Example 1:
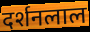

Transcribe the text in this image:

दर्शनलाल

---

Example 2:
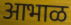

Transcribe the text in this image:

आभाळ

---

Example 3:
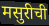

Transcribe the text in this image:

मसुरीची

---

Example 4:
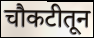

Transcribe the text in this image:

चौकटीतून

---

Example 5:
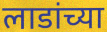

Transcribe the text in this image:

लाडांच्या